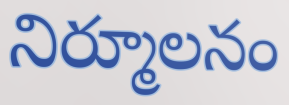
నిర్మూలనం